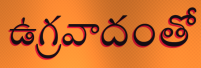
ఉగ్రవాదంతో